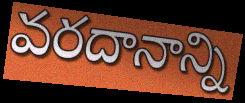
వరదానాన్ని